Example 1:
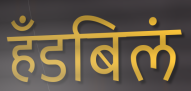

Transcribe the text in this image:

हँडबिलं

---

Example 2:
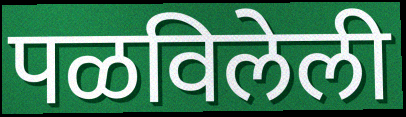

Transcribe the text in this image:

पळविलेली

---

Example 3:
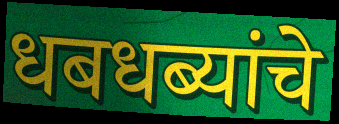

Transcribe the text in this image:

धबधब्यांचे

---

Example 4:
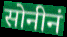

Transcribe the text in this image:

सोनीनं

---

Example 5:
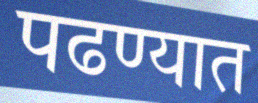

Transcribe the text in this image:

पढण्यात